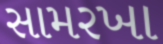
સામરખા